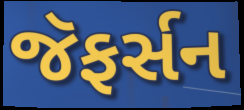
જૅફર્સન